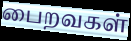
பைறவகள்